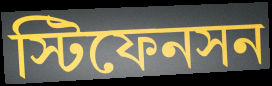
স্টিফেনসন